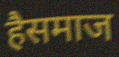
हैसमाज